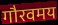
गौरवमय